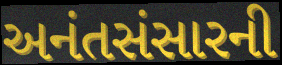
અનંતસંસારની